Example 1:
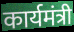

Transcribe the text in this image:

कार्यमंत्री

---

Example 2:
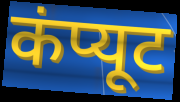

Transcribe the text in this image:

कंप्यूट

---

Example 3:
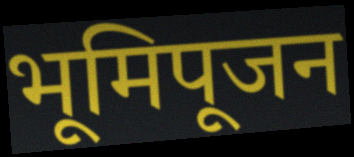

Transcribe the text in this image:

भूमिपूजन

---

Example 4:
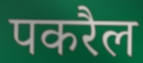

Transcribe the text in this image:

पकरैल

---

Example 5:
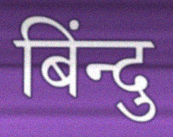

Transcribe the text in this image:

बिंन्दु